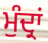
ਮੁੰਦ੍ਰਾਂ